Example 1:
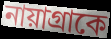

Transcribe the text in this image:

নায়াগ্রাকে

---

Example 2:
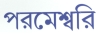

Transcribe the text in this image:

পরমেশ্বরি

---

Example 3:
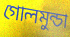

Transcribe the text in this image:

গোলমুন্ডা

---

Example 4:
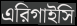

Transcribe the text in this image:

এরিগাইসি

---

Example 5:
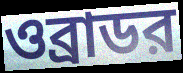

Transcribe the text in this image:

ওব্রাডর